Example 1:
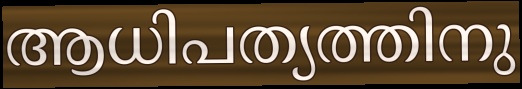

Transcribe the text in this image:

ആധിപത്യത്തിനു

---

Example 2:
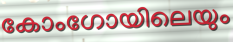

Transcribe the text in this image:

കോംഗോയിലെയും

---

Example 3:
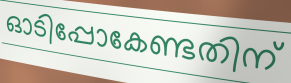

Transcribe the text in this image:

ഓടിപ്പോകേണ്ടതിന്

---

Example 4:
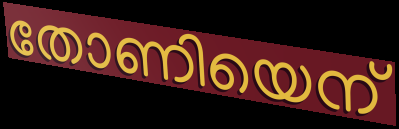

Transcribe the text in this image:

തോണിയെന്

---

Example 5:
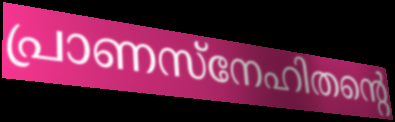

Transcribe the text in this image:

പ്രാണസ്നേഹിതന്റെ